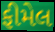
ફીમેલ